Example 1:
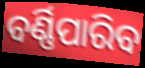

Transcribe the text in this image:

ବର୍ଣ୍ଣିପାରିବ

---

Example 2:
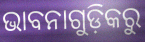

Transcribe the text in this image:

ଭାବନାଗୁଡ଼ିକରୁ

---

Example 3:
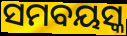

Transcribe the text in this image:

ସମବୟସ୍କ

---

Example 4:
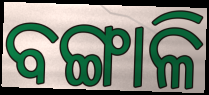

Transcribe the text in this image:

ବଙ୍ଗାଳି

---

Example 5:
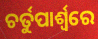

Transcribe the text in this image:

ଚର୍ତୁପାର୍ଶ୍ବରେ